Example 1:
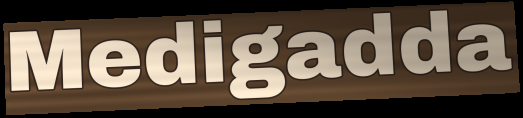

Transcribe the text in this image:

Medigadda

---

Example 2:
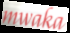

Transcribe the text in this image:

mwaka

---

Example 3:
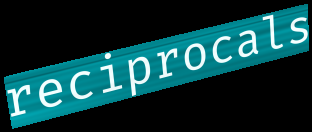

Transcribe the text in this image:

reciprocals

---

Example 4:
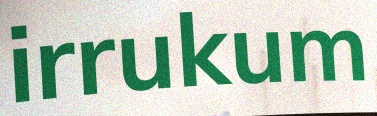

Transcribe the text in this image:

irrukum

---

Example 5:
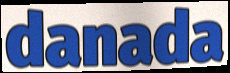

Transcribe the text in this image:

danada